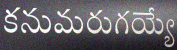
కనుమరుగయ్యే